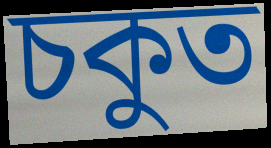
চকুত